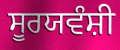
ਸੂਰਯਵੰਸ਼ੀ